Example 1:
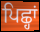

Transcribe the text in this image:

ਪਿਛ੍ਹਾਂ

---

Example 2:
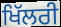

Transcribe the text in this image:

ਖਿੱਲਰੀ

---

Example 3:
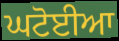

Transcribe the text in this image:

ਘਟੋਈਆ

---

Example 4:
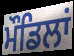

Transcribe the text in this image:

ਮੌਡਿਲਾਂ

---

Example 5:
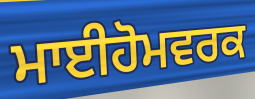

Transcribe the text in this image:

ਮਾਈਹੋਮਵਰਕ